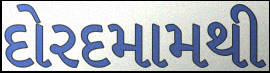
દોરદમામથી